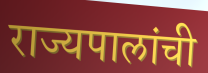
राज्यपालांची